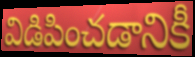
విడిపించడానికీ